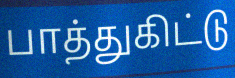
பாத்துகிட்டு